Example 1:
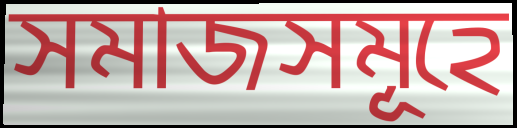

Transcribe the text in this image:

সমাজসমূহে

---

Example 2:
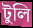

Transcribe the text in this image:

টুলি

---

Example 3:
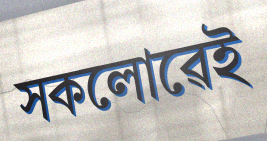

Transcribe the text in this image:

সকলোৱেই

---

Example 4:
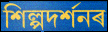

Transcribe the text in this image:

শিল্পদৰ্শনৰ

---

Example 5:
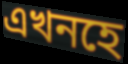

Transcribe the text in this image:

এখনহে